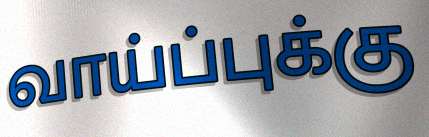
வாய்ப்புக்கு